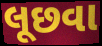
લૂછવા